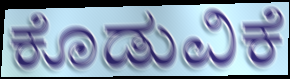
ಕೊಡುವಿಕೆ